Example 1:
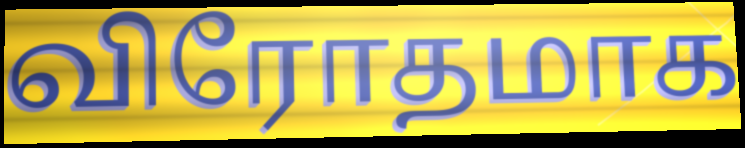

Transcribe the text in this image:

விரோதமாக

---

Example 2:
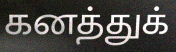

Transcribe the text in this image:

கனத்துக்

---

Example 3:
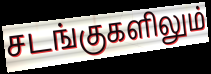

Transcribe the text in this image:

சடங்குகளிலும்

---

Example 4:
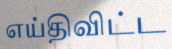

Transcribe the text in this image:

எய்திவிட்ட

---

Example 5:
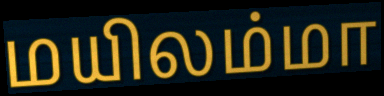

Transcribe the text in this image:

மயிலம்மா